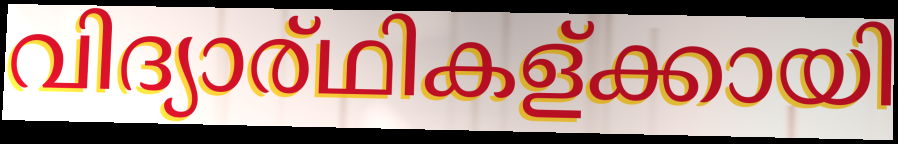
വിദ്യാര്ഥികള്ക്കായി